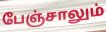
பேஞ்சாலும்